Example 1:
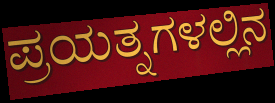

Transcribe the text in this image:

ಪ್ರಯತ್ನಗಳಲ್ಲಿನ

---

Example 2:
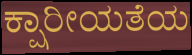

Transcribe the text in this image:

ಕ್ಷಾರೀಯತೆಯ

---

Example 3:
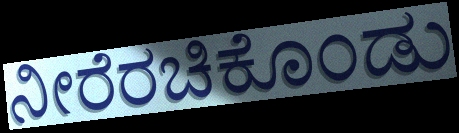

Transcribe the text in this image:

ನೀರೆರಚಿಕೊಂಡು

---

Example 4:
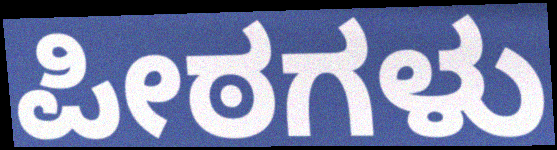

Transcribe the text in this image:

ಪೀಠಗಳು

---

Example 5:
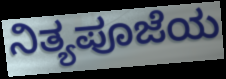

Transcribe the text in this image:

ನಿತ್ಯಪೂಜೆಯ